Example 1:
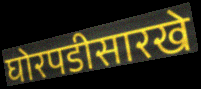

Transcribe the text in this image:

घोरपडीसारखे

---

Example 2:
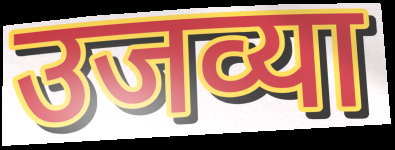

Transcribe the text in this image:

उजव्या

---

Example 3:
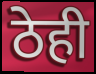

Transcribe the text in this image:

ठेही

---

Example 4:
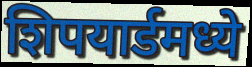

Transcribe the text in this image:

शिपयार्डमध्ये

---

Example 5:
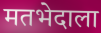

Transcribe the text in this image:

मतभेदाला